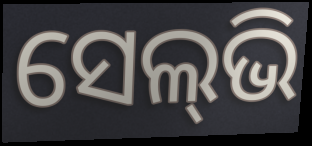
ସେଲ୍‌ଭି